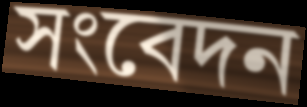
সংবেদন